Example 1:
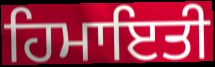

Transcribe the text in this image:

ਹਿਮਾਇਤੀ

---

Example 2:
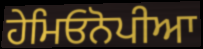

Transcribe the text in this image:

ਹੇਮਿਓਨੋਪੀਆ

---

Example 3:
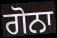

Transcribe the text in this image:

ਗੋਨਾ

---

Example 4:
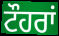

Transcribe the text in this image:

ਟੌਹਰਾਂ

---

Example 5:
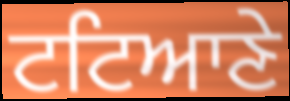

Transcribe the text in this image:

ਟਟਿਆਣੇ